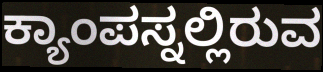
ಕ್ಯಾಂಪಸ್ನಲ್ಲಿರುವ